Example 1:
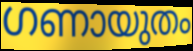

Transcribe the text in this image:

ഗണായുതം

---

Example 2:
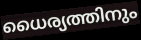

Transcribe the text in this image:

ധൈര്യത്തിനും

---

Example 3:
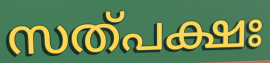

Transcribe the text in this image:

സത്പക്ഷഃ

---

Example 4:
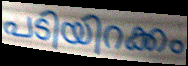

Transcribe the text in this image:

പടിയിറക്കം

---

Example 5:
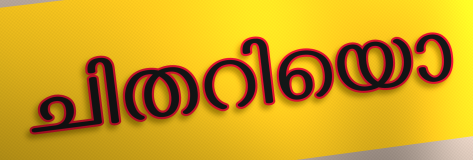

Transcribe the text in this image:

ചിതറിയൊ